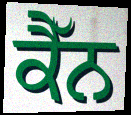
ਕੈੱਨ